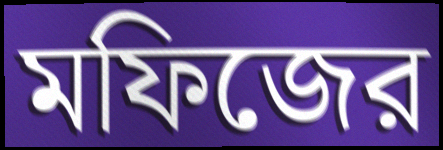
মফিজের